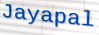
Jayapal